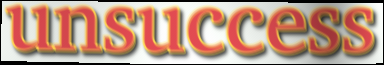
unsuccess